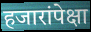
हजारांपेक्षा